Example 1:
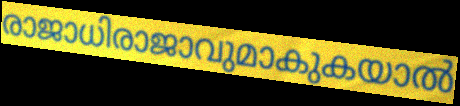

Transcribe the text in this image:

രാജാധിരാജാവുമാകുകയാൽ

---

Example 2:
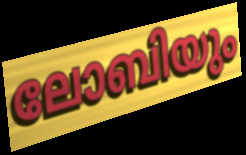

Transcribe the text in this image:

ലോബിയും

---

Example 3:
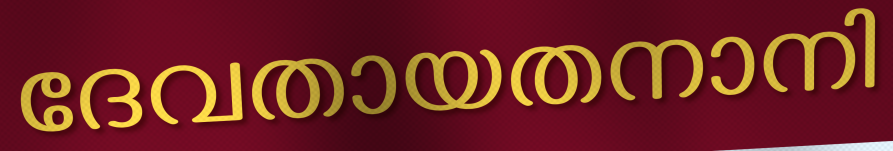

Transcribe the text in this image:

ദേവതായതനാനി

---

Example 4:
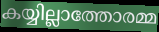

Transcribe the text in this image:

കയ്യില്ലാത്തോരമ്മ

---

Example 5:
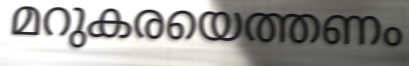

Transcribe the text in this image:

മറുകരയെത്തണം